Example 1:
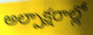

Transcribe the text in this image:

అల్పాక్షరాల్లో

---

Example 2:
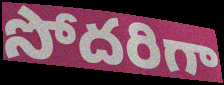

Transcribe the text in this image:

సోదరిగా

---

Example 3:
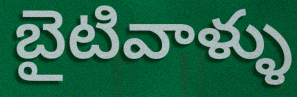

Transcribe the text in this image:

బైటివాళ్ళు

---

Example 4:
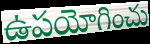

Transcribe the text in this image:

ఉపయోగించు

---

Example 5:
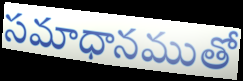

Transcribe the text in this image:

సమాధానముతో